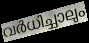
വർധിച്ചാലും